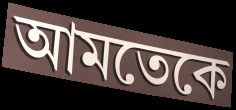
আমতেকে